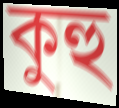
কুহু